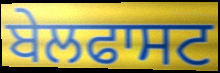
ਬੇਲਫਾਸਟ